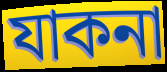
যাকনা